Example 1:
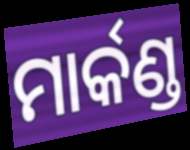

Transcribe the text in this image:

ମାର୍କଣ୍ଡ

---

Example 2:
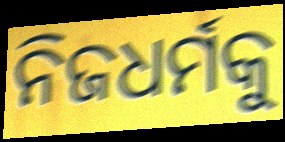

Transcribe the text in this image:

ନିଜଧର୍ମକୁ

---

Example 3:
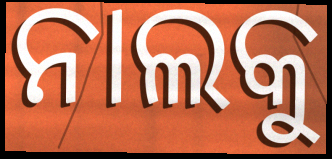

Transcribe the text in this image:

ନାଲକୁ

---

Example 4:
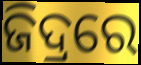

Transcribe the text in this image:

ଜିଦ୍ରରେ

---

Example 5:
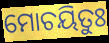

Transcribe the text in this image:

ମୋଚୟିତୁଃ